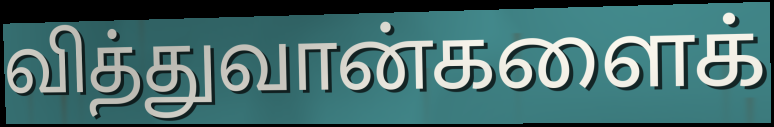
வித்துவான்களைக்